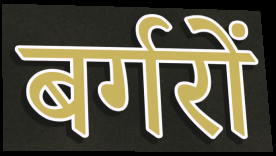
बर्गरों